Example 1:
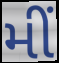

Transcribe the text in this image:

મીં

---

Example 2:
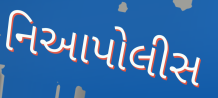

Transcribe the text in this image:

નિઆપોલીસ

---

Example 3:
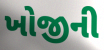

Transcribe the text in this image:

ખોજીની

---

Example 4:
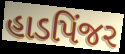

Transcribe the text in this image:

હાડપિંજર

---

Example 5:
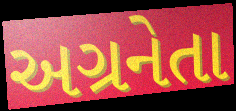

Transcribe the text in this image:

અગ્રનેતા